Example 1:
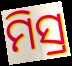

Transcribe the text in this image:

ମିସ୍ର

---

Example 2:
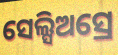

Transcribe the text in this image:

ସେଲ୍ସିଅସ୍ରେ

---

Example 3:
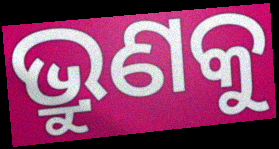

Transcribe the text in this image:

ଭ୍ରୁଣକୁ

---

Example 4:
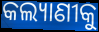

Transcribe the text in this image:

କଲ୍ୟାଣୀକୁ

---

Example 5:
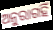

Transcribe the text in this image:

ଅନୁରାଗହିଁ